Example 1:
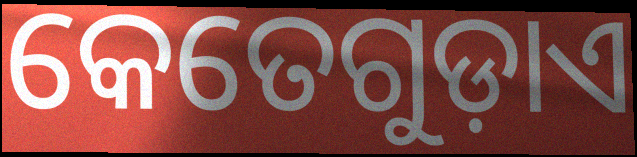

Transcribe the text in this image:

କେତେଗୁଡ଼ାଏ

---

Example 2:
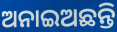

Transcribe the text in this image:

ଅନାଇଅଛନ୍ତି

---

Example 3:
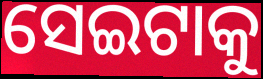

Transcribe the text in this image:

ସେଇଟାକୁ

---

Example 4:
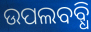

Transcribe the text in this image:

ଉପଲବବ୍ଧି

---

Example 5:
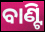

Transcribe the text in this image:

ବାଣ୍ଟି